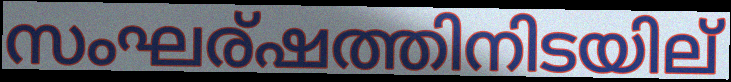
സംഘര്ഷത്തിനിടയില്